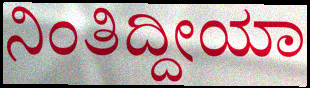
ನಿಂತಿದ್ದೀಯಾ